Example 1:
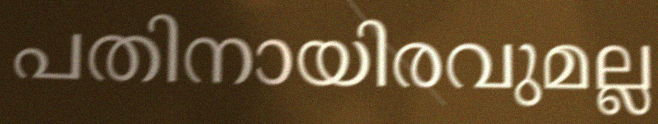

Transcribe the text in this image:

പതിനായിരവുമല്ല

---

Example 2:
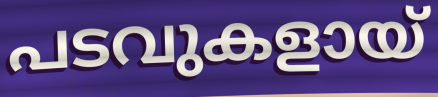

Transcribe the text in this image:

പടവുകളായ്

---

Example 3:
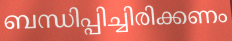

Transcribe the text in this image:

ബന്ധിപ്പിച്ചിരിക്കണം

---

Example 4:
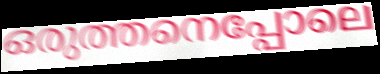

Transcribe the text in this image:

ഒരുത്തനെപ്പോലെ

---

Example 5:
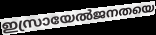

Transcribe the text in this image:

ഇസ്രായേൽജനതയെ